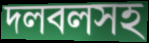
দলবলসহ